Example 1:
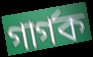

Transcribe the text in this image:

গাৰ্গক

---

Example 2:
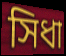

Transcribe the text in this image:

সিধা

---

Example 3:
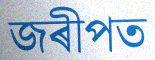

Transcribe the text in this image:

জৰীপত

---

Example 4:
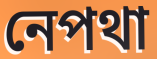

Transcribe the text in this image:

নেপথা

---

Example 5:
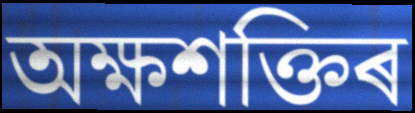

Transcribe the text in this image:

অক্ষশক্তিৰ